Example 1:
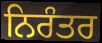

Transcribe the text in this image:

ਨਿਰੰਤਰ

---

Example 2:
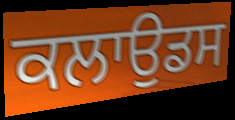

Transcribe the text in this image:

ਕਲਾਉਡਸ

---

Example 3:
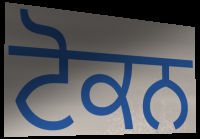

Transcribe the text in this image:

ਟੋਕਨ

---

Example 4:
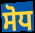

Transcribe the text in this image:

ਸੋਧ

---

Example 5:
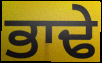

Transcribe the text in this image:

ਭਾਢੇ